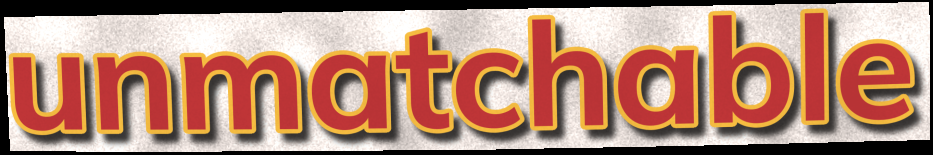
unmatchable